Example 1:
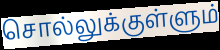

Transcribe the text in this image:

சொல்லுக்குள்ளும்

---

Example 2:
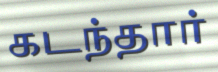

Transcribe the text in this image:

கடந்தார்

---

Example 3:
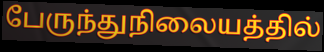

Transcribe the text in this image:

பேருந்துநிலையத்தில்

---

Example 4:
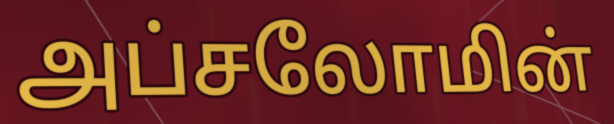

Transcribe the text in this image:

அப்சலோமின்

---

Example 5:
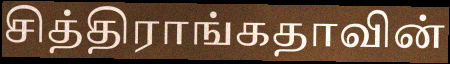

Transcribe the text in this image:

சித்திராங்கதாவின்